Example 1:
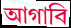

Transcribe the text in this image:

আগাবি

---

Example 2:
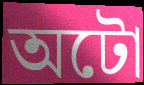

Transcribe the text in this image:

অটো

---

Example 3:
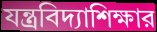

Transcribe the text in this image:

যন্ত্রবিদ্যাশিক্ষার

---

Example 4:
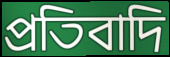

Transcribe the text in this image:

প্রতিবাদি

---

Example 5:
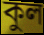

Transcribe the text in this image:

কুল